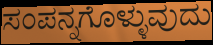
ಸಂಪನ್ನಗೊಳ್ಳುವುದು